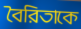
বৈরিতাকে